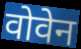
वोवेन